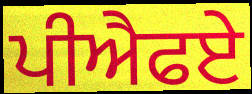
ਪੀਐਫਏ